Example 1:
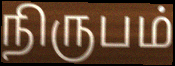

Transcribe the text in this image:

நிருபம்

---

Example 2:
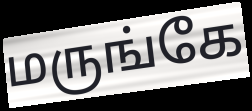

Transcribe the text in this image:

மருங்கே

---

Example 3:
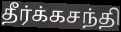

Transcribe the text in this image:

தீர்க்கசந்தி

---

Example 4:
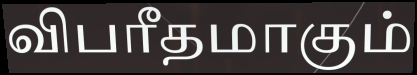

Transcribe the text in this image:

விபரீதமாகும்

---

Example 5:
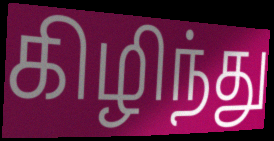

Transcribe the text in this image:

கிழிந்து